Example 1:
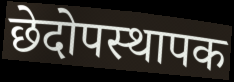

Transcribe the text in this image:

छेदोपस्थापक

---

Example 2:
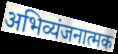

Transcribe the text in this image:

अभिव्यंजनात्मक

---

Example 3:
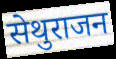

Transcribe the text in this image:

सेथुराजन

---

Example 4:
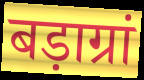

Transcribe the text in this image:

बड़ाग्रां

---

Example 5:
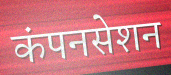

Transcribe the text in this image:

कंपनसेशन